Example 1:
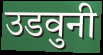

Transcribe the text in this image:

उडवुनी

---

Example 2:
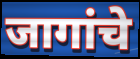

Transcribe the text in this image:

जागांचे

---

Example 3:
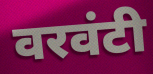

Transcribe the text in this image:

वरवंटी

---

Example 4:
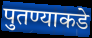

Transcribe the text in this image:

पुतण्याकडे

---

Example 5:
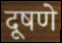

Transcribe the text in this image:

दूषणे